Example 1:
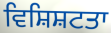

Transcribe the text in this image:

ਵਿਸ਼ਿਸ਼ਟਤਾ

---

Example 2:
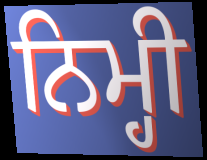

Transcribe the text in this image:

ਨਿਮ੍ਹੀ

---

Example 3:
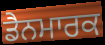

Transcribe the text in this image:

ਡੈਨਮਾਰਕ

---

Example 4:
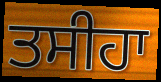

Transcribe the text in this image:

ਤਸੀਹਾ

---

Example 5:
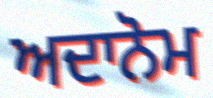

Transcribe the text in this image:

ਅਦਾਨੋਮ